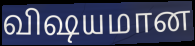
விஷயமான